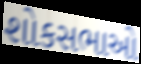
શોકસભાઓ